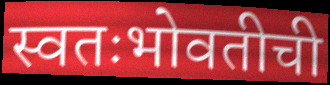
स्वतःभोवतीची